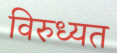
विरुध्यत